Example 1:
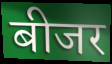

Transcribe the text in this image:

बीजर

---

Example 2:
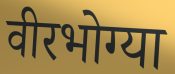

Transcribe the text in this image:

वीरभोग्या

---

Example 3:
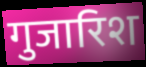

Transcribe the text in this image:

गुजारिश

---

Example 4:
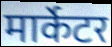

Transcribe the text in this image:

मार्केटर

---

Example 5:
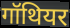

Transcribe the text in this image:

गॉथियर